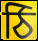
ঠি